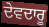
ਦੇਵਦਾਰੂ